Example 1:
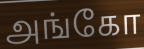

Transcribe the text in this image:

அங்கோ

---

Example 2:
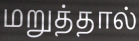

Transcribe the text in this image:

மறுத்தால்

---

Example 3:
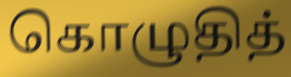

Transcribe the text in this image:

கொழுதித்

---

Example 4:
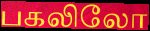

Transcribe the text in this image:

பகலிலோ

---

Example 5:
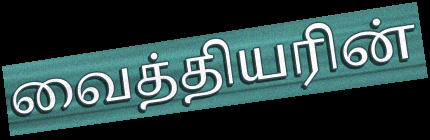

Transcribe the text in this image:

வைத்தியரின்